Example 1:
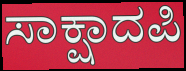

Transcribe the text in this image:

ಸಾಕ್ಷಾದಪಿ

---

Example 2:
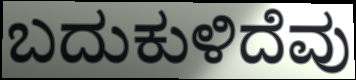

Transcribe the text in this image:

ಬದುಕುಳಿದೆವು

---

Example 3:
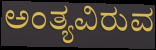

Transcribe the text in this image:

ಅಂತ್ಯವಿರುವ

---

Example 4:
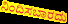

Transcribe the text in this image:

ನಿಂದಿಸಬಾರದು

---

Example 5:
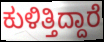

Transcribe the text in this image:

ಕುಳಿತ್ತಿದ್ದಾರೆ